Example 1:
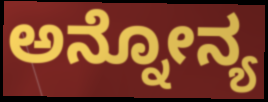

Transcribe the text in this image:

ಅನ್ನೋನ್ಯ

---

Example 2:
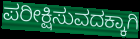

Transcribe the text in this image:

ಪರೀಕ್ಷಿಸುವದಕ್ಕಾಗಿ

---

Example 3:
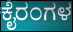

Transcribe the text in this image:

ಕೈರಂಗಳ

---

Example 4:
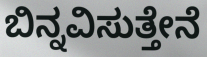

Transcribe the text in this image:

ಬಿನ್ನವಿಸುತ್ತೇನೆ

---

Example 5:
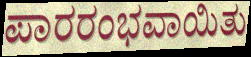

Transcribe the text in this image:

ಪಾರರಂಭವಾಯಿತು